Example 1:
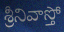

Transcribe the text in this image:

శ్రీనివాస్తో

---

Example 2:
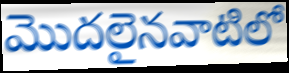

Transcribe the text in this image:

మొదలైనవాటిలో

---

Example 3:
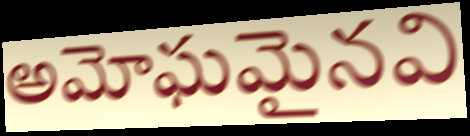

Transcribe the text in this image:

అమోఘమైనవి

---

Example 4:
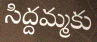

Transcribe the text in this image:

సిద్దమ్మకు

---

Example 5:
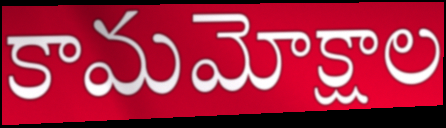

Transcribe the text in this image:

కామమోక్షాల